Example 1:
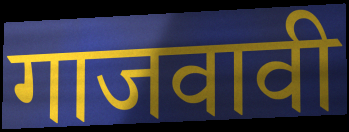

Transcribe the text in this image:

गाजवावी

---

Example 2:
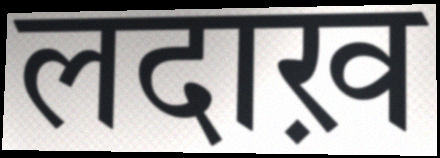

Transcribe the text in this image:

लदाख़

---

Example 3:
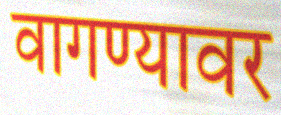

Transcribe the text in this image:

वागण्यावर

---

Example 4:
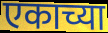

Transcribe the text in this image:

एकाच्या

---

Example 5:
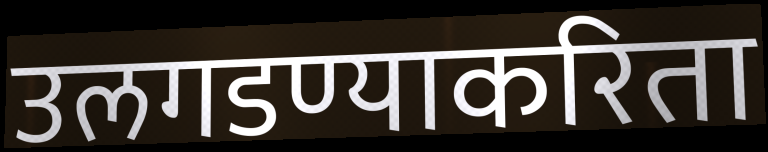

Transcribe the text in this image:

उलगडण्याकरिता